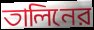
তালিনের